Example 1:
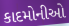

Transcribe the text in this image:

કાદમોનીઓ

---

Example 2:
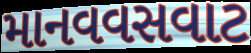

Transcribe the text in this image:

માનવવસવાટ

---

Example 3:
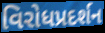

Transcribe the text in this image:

વિરોધપ્રદર્શન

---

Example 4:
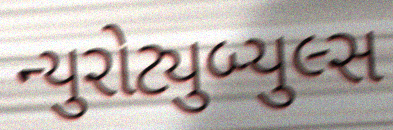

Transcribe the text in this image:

ન્યુરોટ્યુબ્યુલ્સ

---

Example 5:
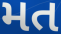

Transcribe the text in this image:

મત